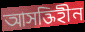
আসক্তিহীন